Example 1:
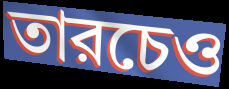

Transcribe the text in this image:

তারচেও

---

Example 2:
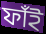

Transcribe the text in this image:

ফাঁই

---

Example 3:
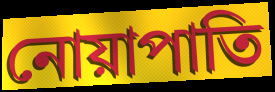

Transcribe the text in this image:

নোয়াপাতি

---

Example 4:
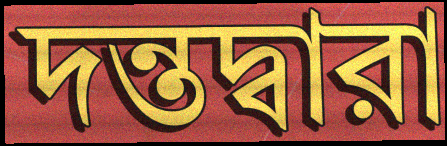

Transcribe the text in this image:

দন্তদ্বারা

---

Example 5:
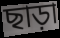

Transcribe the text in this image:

ছাড়া